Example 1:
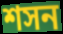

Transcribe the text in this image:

শসন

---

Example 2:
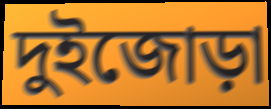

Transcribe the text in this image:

দুইজোড়া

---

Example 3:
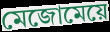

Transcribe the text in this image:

মেজোমেয়ে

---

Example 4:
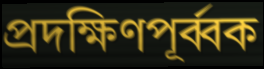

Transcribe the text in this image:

প্রদক্ষিণপূর্ব্বক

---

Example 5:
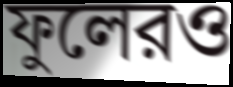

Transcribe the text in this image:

ফুলেরও